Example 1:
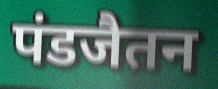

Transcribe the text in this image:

पंडजैतन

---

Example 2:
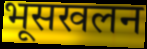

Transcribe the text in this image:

भूसखलन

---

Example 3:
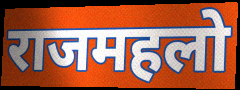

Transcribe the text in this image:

राजमहलो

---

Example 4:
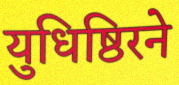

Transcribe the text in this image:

युधिष्ठिरने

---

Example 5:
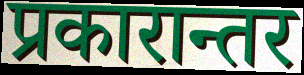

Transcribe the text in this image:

प्रकारान्तर